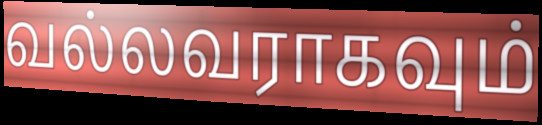
வல்லவராகவும்